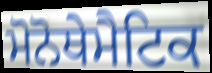
ਮੋਨੋਥੇਮੈਟਿਕ